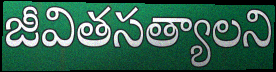
జీవితసత్యాలని